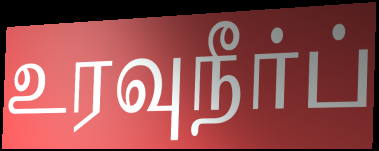
உரவுநீர்ப்